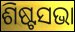
ଶିଷ୍ଟସଭା